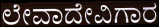
ಲೇವಾದೇವಿಗಾರ